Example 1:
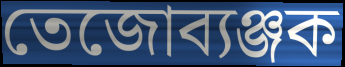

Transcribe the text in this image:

তেজোব্যঞ্জক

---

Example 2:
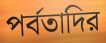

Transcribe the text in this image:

পর্বতাদির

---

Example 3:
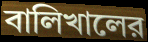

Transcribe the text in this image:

বালিখালের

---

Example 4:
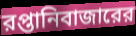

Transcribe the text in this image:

রপ্তানিবাজারের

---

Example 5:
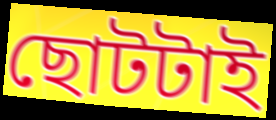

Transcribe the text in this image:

ছোটটাই